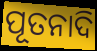
ପୂତନାଦି